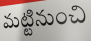
మట్టినుంచి